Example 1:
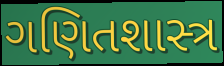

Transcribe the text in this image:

ગણિતશાસ્ત્ર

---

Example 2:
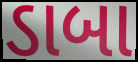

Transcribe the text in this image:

ડાબા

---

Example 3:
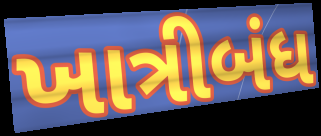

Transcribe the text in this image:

ખાત્રીબંધ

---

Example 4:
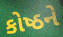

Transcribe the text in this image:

કોષ્ઠને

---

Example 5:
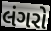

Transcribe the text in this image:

લંગરો